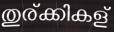
തുര്ക്കികള്